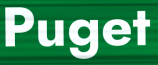
Puget